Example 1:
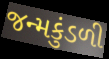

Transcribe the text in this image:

જન્મકુંડળી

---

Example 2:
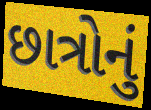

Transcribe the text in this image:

છાત્રોનું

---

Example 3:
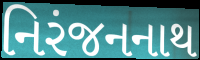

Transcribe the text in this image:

નિરંજનનાથ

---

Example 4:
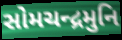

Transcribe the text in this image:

સોમચન્દ્રમુનિ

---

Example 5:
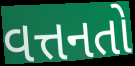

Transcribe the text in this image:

વત્તનતો